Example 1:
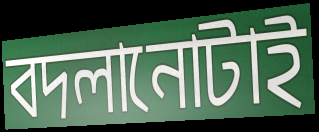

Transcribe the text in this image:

বদলানোটাই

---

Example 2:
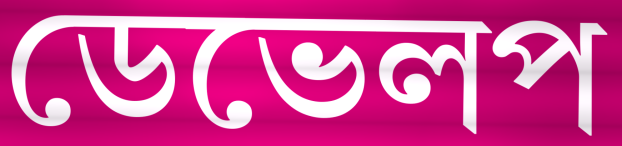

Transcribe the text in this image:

ডেভেলপ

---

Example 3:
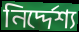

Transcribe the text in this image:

নির্দ্দেশ্য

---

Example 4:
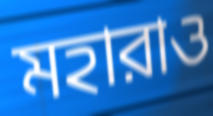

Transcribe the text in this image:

মহারাও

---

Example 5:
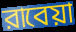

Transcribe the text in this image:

রাবেয়া